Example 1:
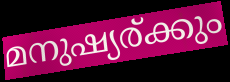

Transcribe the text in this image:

മനുഷ്യര്ക്കും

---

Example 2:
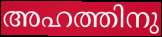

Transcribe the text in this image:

അഹത്തിനു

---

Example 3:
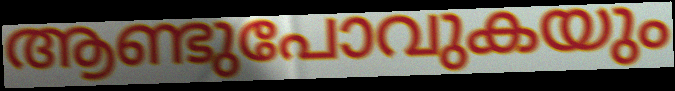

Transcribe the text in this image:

ആണ്ടുപോവുകയും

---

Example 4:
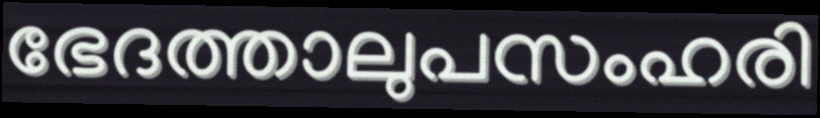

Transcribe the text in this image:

ഭേദത്താലുപസംഹരി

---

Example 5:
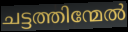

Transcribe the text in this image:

ചട്ടത്തിന്മേൽ